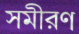
সমীরণ